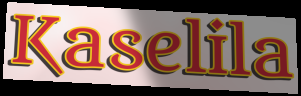
Kaselila